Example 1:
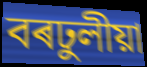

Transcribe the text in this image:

বৰঢুলীয়া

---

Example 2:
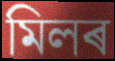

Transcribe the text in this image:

মিলৰ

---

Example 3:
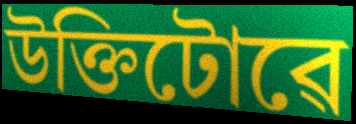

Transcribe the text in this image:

উক্তিটোৱে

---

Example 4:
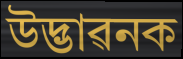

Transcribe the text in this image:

উদ্ভাৱনক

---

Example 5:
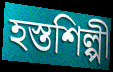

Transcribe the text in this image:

হস্তশিল্পী